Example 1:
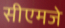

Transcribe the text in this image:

सीएमजे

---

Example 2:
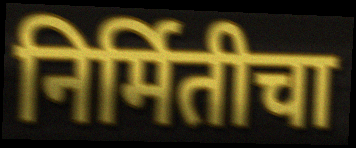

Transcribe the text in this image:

निर्मितीचा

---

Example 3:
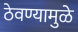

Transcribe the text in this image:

ठेवण्यामुळे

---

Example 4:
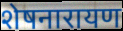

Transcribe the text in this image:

शेषनारायण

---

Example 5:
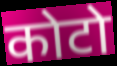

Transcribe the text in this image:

कोटो